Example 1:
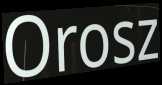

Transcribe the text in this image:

Orosz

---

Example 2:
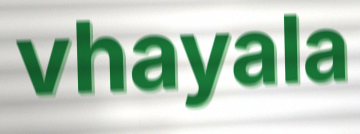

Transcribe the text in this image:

vhayala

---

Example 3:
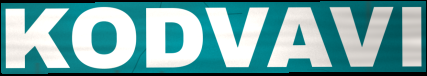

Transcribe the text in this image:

KODVAVI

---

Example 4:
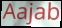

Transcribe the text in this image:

Aajab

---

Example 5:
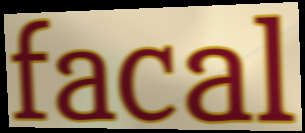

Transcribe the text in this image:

facal